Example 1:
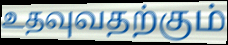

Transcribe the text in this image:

உதவுவதற்கும்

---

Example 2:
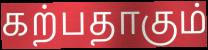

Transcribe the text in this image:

கற்பதாகும்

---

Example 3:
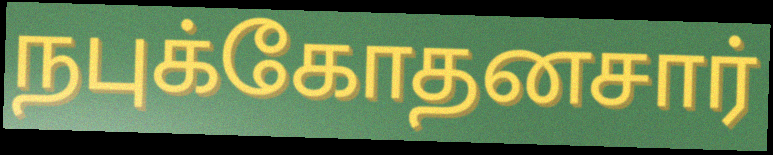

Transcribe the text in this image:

நபுக்கோதனசார்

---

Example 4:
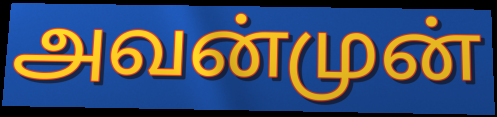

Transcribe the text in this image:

அவன்முன்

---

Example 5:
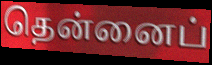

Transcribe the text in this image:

தென்னைப்